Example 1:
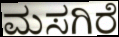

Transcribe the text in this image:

ಮಸಗಿರೆ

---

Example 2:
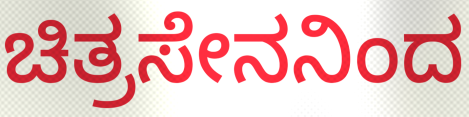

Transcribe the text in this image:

ಚಿತ್ರಸೇನನಿಂದ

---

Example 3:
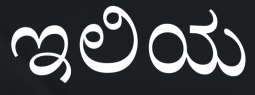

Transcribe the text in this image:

ಇಲಿಯ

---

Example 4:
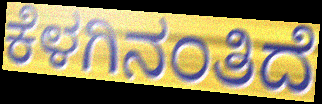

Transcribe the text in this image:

ಕೆಳಗಿನಂತಿದೆ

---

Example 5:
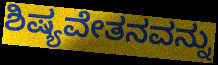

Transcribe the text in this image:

ಶಿಷ್ಯವೇತನವನ್ನು